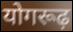
योगरूढ़